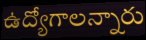
ఉద్యోగాలన్నారు